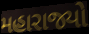
મહારાજ્યો